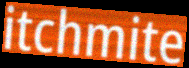
itchmite